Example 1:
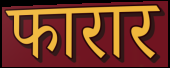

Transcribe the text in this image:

फारार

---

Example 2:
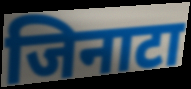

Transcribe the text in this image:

जिनाटा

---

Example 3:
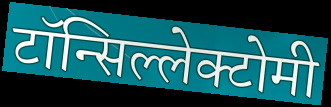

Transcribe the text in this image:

टॉन्सिल्लेक्टोमी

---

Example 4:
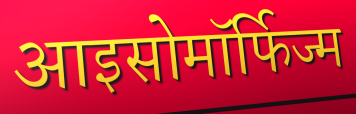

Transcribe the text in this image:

आइसोमॉर्फिज्म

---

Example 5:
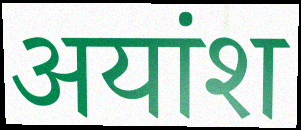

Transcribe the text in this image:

अयांश